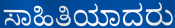
ಸಾಹಿತಿಯಾದರು